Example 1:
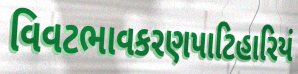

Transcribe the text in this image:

વિવટભાવકરણપાટિહારિયં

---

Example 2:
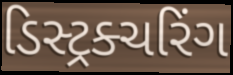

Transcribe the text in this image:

ડિસ્ટ્રક્ચરિંગ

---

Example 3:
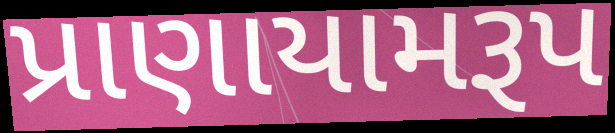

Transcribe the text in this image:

પ્રાણાયામરૂપ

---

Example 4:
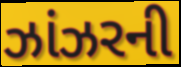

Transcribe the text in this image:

ઝાંઝરની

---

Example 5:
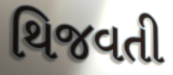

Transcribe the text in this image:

થિજવતી